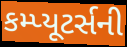
કમ્પ્યૂટર્સની